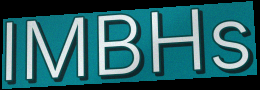
IMBHs